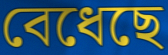
বেধেছে